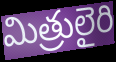
మిత్రులైరి